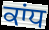
ਕਾਂਧ